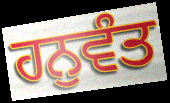
ਹਨੁਵੰਤ